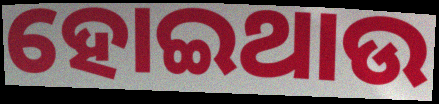
ହୋଇଥାଉ